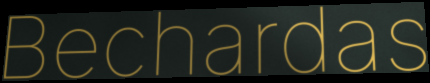
Bechardas